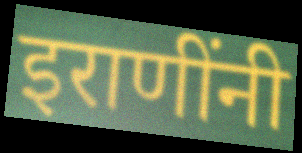
इराणींनी